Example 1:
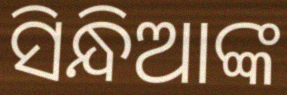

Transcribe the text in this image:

ସିନ୍ଧିଆଙ୍କ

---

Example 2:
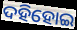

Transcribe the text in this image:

ଦହିହୋଇ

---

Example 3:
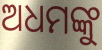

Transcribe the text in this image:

ଅଧମଙ୍କୁ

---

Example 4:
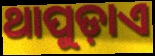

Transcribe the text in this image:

ଥାପୁଡ଼ାଏ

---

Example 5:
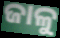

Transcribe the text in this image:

ଜାଳୁ